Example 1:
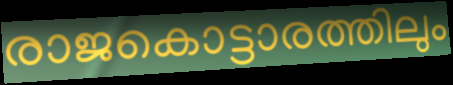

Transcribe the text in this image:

രാജകൊട്ടാരത്തിലും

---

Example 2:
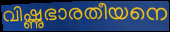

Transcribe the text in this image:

വിഷ്ണുഭാരതീയനെ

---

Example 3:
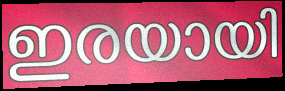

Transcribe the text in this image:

ഇരയായി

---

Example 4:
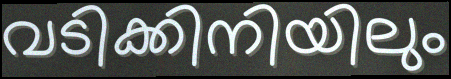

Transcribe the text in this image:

വടിക്കിനിയിലും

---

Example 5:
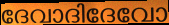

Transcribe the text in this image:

ദേവാദിദേവോ